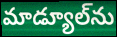
మాడ్యూల్‌ను